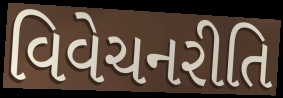
વિવેચનરીતિ